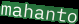
mahanto